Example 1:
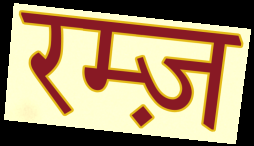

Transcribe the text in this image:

रम्ज़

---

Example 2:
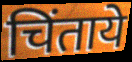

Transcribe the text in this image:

चिंताये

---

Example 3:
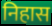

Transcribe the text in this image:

निहास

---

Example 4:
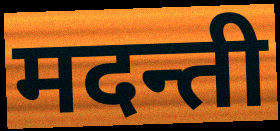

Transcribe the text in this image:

मदन्ती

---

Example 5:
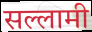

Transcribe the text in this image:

सल्लामी